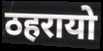
ठहरायो